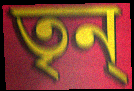
তৃন্